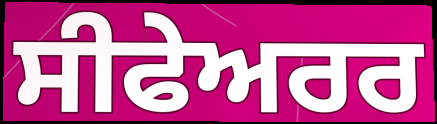
ਸੀਫੇਅਰਰ